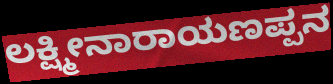
ಲಕ್ಷ್ಮೀನಾರಾಯಣಪ್ಪನ